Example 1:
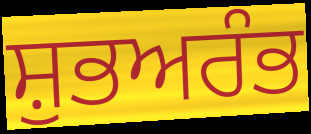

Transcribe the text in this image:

ਸ਼ੁਭਅਰੰਭ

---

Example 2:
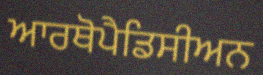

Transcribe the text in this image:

ਆਰਥੋਪੈਡਿਸੀਅਨ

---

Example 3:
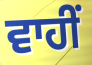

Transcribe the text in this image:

ਵਾਹੀਂ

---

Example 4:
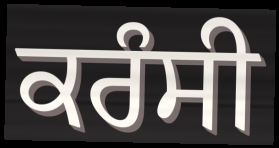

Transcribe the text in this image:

ਕਰੰਸੀ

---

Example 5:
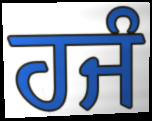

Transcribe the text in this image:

ਹਜੰ